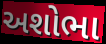
અશોભા